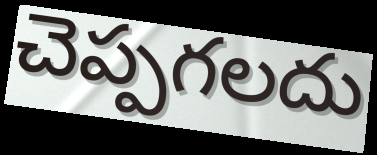
చెప్పగలదు